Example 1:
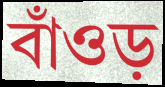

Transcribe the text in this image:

বাঁওড়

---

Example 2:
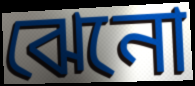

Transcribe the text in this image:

ঝেনো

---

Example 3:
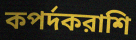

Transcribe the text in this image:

কপর্দকরাশি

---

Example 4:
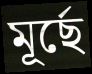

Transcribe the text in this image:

মূর্ছে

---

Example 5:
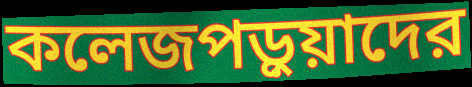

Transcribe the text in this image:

কলেজপড়ুয়াদের